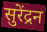
सुरेंद्रन